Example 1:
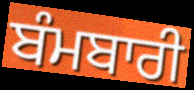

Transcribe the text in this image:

ਬੰਮਬਾਰੀ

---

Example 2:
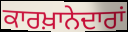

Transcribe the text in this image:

ਕਾਰਖ਼ਾਨੇਦਾਰਾਂ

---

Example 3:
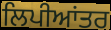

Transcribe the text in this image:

ਲਿਪੀਆਂਤਰ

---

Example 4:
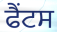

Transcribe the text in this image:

ਫੈਂਟਸ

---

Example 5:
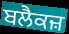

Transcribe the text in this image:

ਬਲੈਕਜ਼